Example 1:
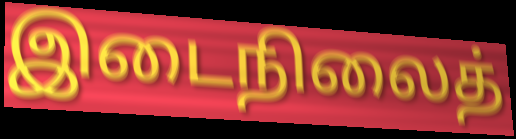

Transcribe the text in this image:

இடைநிலைத்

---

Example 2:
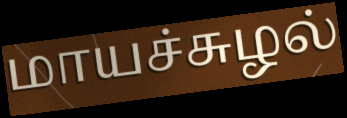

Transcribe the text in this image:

மாயச்சுழல்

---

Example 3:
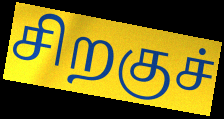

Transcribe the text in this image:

சிறகுச்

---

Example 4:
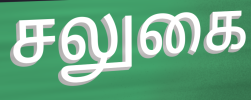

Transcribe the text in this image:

சலுகை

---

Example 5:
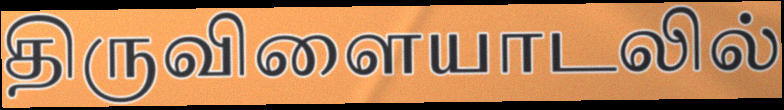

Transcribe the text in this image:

திருவிளையாடலில்